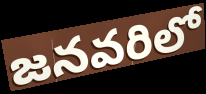
జనవరిలో